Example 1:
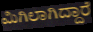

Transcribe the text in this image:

ಮಿಗಿಲಾಗಿದ್ದಾರೆ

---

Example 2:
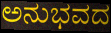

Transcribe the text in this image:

ಅನುಭವದ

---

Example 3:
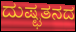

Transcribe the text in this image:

ದುಷ್ಟತನದ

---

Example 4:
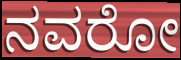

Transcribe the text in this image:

ನವರೋ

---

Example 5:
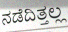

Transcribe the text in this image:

ನಡೆದಿತ್ತಲ್ಲ